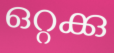
ഒറ്റക്കു